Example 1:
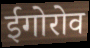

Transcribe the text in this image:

ईगोरोव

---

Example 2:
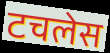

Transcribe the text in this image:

टचलेस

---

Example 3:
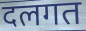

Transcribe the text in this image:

दलगत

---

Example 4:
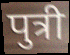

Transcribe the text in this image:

पुत्री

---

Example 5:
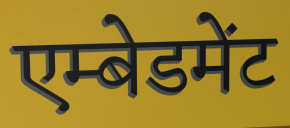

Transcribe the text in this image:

एम्बेडमेंट